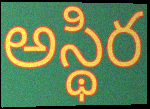
అస్థిర